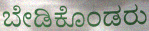
ಬೇಡಿಕೊಂಡರು